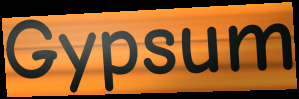
Gypsum